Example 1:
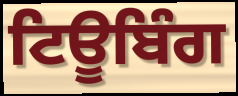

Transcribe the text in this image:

ਟਿਊਬਿੰਗ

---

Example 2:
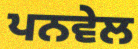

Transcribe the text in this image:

ਪਨਵੇਲ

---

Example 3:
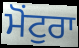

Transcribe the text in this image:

ਮੋਂਟੁਰਾ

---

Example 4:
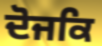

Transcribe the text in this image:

ਦੋਜਕਿ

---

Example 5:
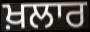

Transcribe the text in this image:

ਖ਼ਲਾਰ